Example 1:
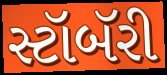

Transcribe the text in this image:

સ્ટૉબૅરી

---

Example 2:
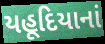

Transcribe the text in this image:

યહૂદિયાનાં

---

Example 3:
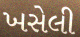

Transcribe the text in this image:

ખસેલી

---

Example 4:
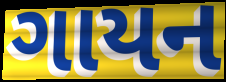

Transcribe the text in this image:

ગાયન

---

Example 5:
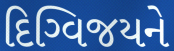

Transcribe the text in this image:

દિગ્વિજયને